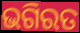
ଭଗିରତ